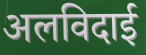
अलविदाई